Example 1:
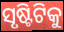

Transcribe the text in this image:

ସୃଷ୍ଟିଟିକୁ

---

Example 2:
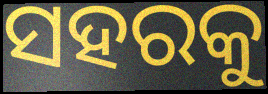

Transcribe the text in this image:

ସହରକୁ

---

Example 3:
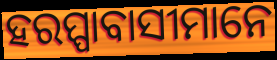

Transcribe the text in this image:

ହରପ୍ପାବାସୀମାନେ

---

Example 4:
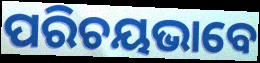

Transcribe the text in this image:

ପରିଚୟଭାବେ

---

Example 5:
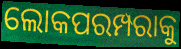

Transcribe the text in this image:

ଲୋକପରମ୍ପରାକୁ